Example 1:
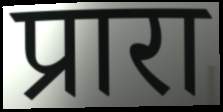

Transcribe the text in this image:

प्रारा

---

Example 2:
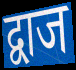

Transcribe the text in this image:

द्वाज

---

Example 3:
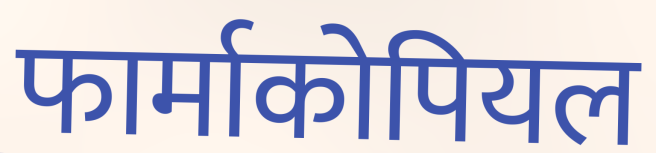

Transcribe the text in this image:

फार्माकोपियल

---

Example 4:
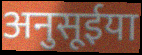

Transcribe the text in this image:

अनुसूईया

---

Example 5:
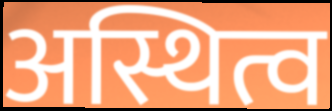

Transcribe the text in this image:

अस्थित्व